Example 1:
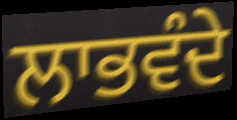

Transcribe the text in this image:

ਲਾਭਵੰਦੇ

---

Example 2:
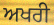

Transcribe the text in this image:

ਅਖਰੀ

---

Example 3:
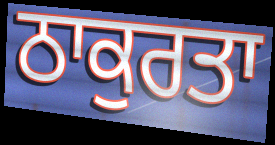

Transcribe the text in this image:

ਠਾਕੁਰਤਾ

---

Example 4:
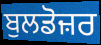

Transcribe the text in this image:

ਬੁਲਡੋਜ਼ਰ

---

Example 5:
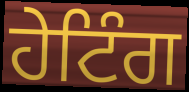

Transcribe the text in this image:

ਹੇਟਿੰਗ